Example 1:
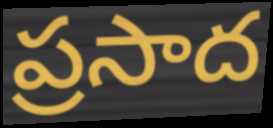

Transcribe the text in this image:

ప్రసాద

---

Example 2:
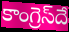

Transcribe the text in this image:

కాంగ్రెస్‌దే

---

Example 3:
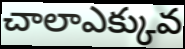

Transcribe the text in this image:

చాలాఎక్కువ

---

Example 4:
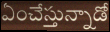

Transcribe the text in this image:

ఏంచేస్తున్నాడో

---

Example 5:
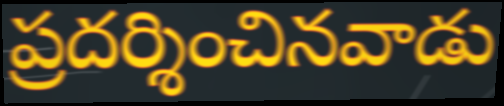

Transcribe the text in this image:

ప్రదర్శించినవాడు